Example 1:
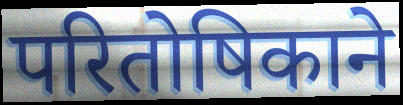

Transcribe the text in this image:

परितोषिकाने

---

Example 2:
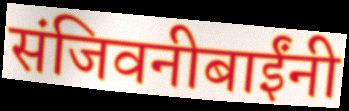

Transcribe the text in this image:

संजिवनीबाईंनी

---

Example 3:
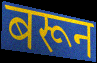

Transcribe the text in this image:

बरून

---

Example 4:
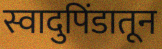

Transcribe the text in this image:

स्वादुपिंडातून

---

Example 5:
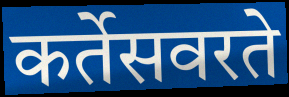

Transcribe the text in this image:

कर्तेसवरते